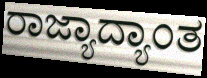
ರಾಜ್ಯಾದ್ಯಾಂತ